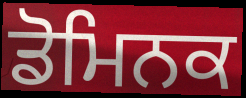
ਡੋਮਿਨਕ